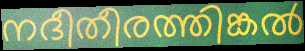
നദീതീരത്തിങ്കൽ